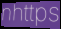
nhttps